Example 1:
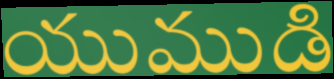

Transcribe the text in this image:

యుముడి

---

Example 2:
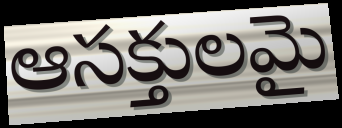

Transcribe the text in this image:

ఆసక్తులమై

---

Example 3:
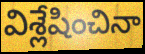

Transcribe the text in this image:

విశ్లేషించినా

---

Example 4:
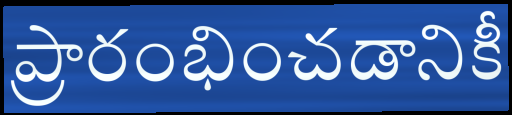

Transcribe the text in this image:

ప్రారంభించడానికీ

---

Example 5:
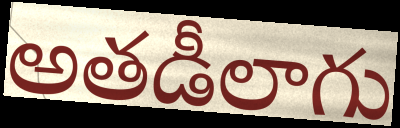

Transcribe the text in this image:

అతడీలాగు